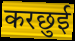
करछुई